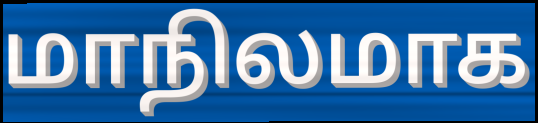
மாநிலமாக